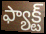
ఫ్యాక్ట్